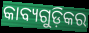
କାବ୍ୟଗୁଡ଼ିକର